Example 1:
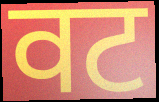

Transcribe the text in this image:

वट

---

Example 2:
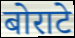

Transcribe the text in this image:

बोराटे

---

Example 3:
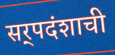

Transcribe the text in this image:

सर्पदंशाची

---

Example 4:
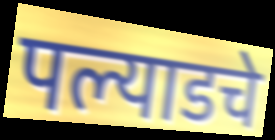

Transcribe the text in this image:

पल्याडचे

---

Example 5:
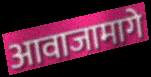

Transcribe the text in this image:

आवाजामागे